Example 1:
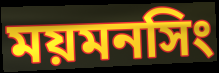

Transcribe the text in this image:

ময়মনসিং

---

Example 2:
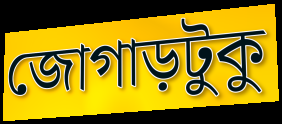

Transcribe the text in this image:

জোগাড়টুকু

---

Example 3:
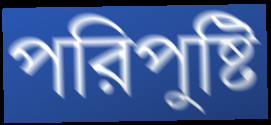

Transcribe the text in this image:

পরিপুষ্টি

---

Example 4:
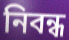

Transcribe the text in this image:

নিবন্ধ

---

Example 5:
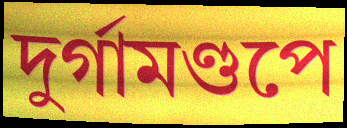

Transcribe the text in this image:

দুর্গামণ্ডপে